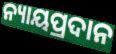
ନ୍ୟାୟପ୍ରଦାନ